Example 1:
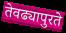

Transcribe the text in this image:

तेवढ्यापुरते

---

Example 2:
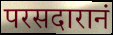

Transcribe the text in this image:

परसदारानं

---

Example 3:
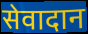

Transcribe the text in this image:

सेवादान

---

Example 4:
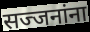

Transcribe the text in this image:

सज्जनांना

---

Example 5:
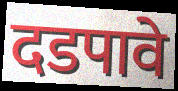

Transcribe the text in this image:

दडपावे